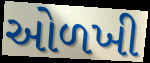
ઓળખી